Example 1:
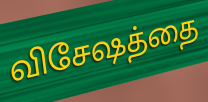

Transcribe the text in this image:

விசேஷத்தை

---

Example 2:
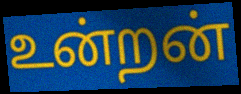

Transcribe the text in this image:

உன்றன்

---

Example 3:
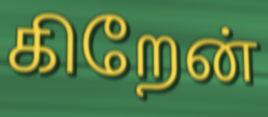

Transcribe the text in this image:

கிறேன்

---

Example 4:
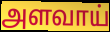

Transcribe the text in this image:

அளவாய்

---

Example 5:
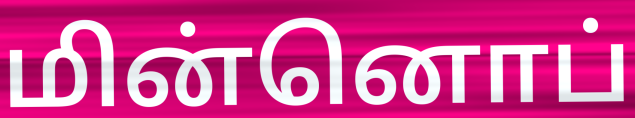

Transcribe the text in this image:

மின்னொப்